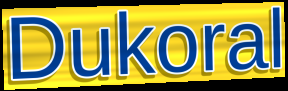
Dukoral